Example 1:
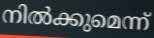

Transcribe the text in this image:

നിൽക്കുമെന്ന്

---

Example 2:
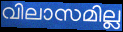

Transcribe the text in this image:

വിലാസമില്ല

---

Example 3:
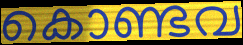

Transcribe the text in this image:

കൊണ്ടവ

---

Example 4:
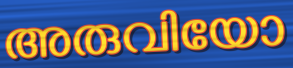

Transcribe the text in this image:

അരുവിയോ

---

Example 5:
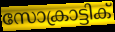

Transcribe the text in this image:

സോക്രാട്ടിക്